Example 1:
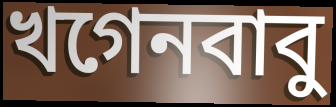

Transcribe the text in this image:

খগেনবাবু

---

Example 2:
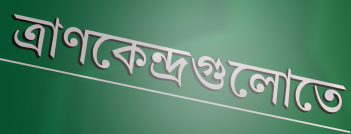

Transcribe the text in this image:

ত্রাণকেন্দ্রগুলোতে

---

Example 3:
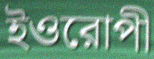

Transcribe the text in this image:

ইওরোপী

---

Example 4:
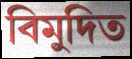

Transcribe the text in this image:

বিমুদিত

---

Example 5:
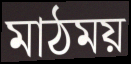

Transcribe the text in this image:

মাঠময়